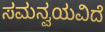
ಸಮನ್ವಯವಿದೆ